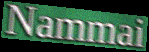
Nammai